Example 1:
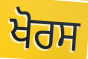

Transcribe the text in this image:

ਖੋਰਸ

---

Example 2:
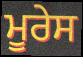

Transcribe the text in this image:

ਮੂਰੇਸ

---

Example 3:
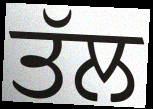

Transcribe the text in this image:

ਤੱਲ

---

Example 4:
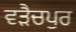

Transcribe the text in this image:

ਵੜੈਚਪੁਰ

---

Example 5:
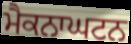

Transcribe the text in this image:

ਮੈਕਨਾਘਟਨ